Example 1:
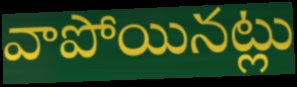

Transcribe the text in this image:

వాపోయినట్లు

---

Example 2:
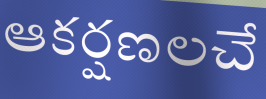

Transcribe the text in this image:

ఆకర్షణలచే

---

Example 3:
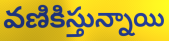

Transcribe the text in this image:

వణికిస్తున్నాయి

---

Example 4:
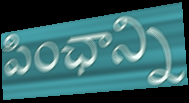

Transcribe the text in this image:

పింఛాన్ని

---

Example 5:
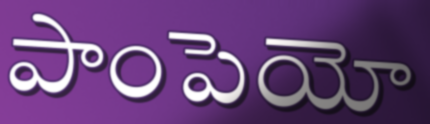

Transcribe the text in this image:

పాంపెయో